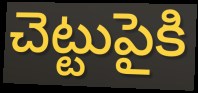
చెట్టుపైకి